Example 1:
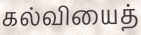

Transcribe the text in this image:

கல்வியைத்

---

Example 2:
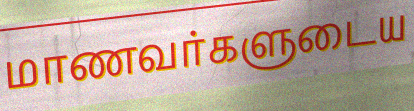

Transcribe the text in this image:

மாணவர்களுடைய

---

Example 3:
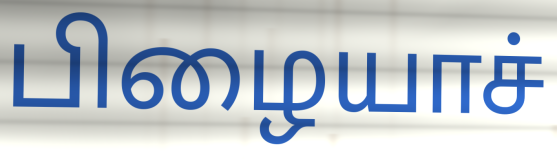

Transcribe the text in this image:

பிழையாச்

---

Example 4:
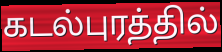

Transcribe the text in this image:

கடல்புரத்தில்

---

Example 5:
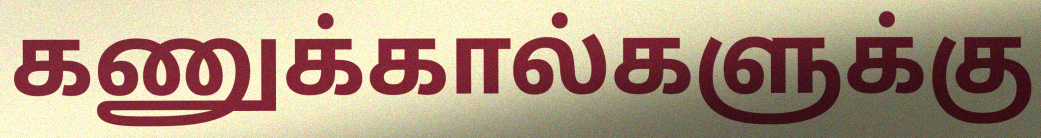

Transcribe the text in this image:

கணுக்கால்களுக்கு